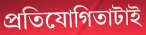
প্রতিযোগিতাটাই